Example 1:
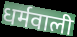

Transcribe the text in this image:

धर्मवाली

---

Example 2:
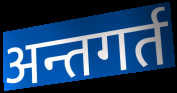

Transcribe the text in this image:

अन्तगर्त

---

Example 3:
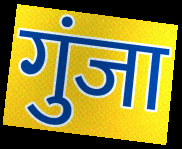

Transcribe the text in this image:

गुंजा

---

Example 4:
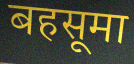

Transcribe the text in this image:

बहसूमा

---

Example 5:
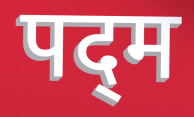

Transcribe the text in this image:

पद्‌म